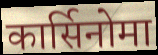
कार्सिनोमा